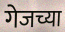
गेजच्या